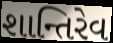
શાન્તિરેવ